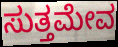
ಸುತ್ತಮೇವ